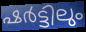
ഷർട്ടിലും